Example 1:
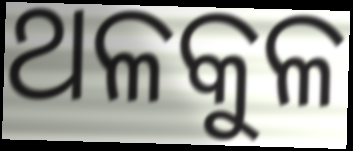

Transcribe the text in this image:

ଥଳକୁଳ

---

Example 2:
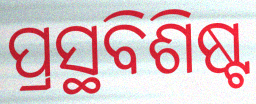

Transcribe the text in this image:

ପ୍ରସ୍ଥବିଶିଷ୍ଟ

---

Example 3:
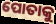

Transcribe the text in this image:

ପୋତାକୁ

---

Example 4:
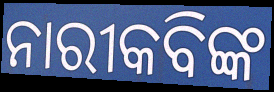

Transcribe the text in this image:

ନାରୀକବିଙ୍କ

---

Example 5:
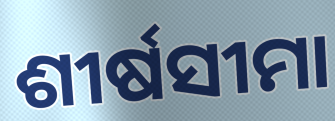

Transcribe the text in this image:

ଶୀର୍ଷସୀମା